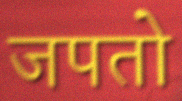
जपतो